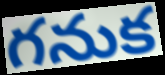
గనుక